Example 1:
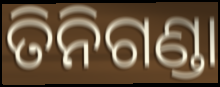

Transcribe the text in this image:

ତିନିଗଣ୍ଡା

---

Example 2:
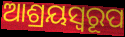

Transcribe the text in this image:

ଆଶ୍ରୟସ୍ୱରୂପ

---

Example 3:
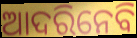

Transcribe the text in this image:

ଆଦରିନେବି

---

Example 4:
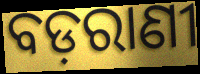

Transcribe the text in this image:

ବଡ଼ରାଣୀ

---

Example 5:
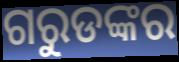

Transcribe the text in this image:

ଗରୁଡଙ୍କର